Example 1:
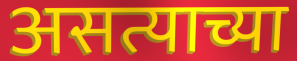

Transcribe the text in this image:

असत्याच्या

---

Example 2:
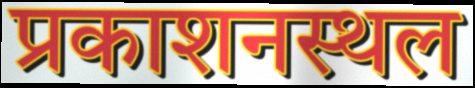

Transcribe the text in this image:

प्रकाशनस्थल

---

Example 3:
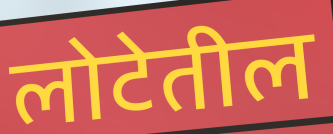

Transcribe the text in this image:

लोटेतील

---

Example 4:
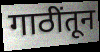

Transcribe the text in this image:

गाठींतून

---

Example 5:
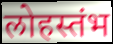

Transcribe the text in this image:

लोहस्तंभ